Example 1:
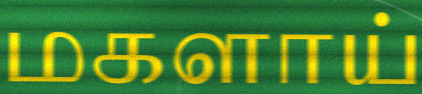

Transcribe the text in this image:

மகளாய்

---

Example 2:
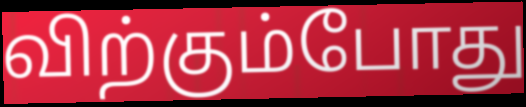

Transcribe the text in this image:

விற்கும்போது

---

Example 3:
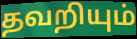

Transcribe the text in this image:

தவறியும்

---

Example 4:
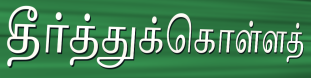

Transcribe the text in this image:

தீர்த்துக்கொள்ளத்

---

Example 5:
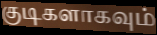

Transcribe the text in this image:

குடிகளாகவும்